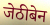
जेठीबेन